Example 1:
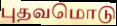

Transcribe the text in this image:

புதவமொடு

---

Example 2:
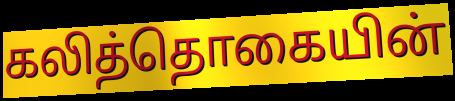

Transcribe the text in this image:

கலித்தொகையின்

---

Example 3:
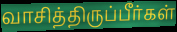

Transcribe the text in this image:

வாசித்திருப்பீர்கள்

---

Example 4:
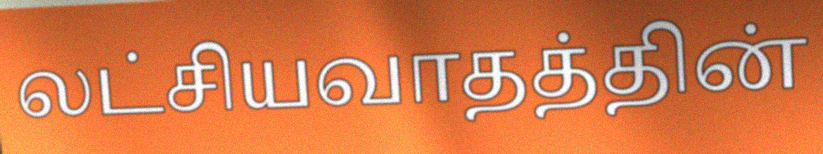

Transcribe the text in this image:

லட்சியவாதத்தின்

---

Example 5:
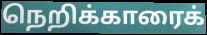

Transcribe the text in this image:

நெறிக்காரைக்